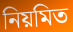
নিয়মিত